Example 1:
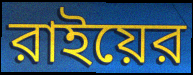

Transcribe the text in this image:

রাইয়ের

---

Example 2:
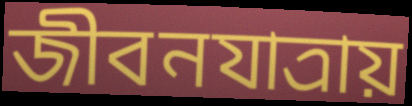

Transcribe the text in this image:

জীবনযাত্রায়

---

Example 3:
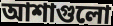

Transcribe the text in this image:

আশাগুলো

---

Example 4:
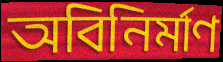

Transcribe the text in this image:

অবিনির্মাণ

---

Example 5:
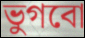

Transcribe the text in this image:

ভুগবো